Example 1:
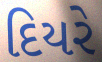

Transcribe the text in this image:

દિયરે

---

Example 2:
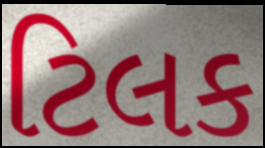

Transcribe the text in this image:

ટિલક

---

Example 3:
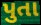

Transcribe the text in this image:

પુતા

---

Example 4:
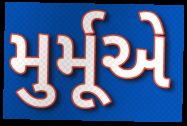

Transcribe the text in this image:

મુર્મૂએ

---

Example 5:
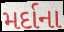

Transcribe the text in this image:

મર્દાના